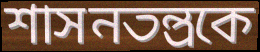
শাসনতন্ত্রকে